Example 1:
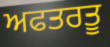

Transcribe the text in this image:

ਅਫਤਰਤੂ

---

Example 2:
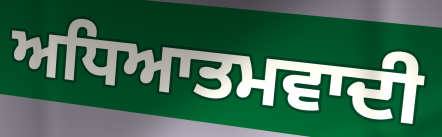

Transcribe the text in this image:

ਅਧਿਆਤਮਵਾਦੀ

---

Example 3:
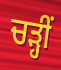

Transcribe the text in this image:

ਚੜ੍ਹੀਂ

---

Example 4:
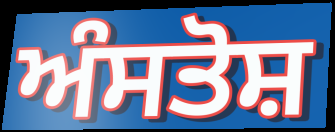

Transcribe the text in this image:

ਅੰਸਤੋਸ਼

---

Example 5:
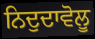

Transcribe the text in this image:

ਨਿਦੁਦਾਵੋਲੂ